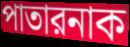
পাতারনাক